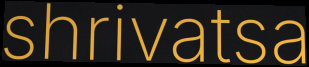
shrivatsa